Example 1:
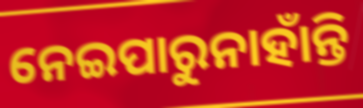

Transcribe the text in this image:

ନେଇପାରୁନାହାଁନ୍ତି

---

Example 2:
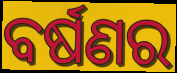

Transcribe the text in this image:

ବର୍ଷଣର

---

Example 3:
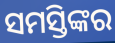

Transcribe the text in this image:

ସମସ୍ତିଙ୍କର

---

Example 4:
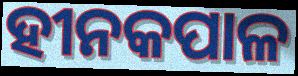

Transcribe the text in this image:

ହୀନକପାଳ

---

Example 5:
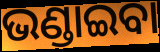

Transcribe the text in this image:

ଭଣ୍ଡାଇବା